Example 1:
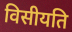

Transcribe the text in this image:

विसीयति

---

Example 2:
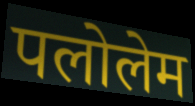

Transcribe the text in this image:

पलोलेम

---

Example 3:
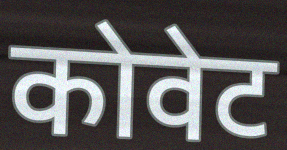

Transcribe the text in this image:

कोवेट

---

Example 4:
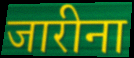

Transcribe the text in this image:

जारीना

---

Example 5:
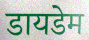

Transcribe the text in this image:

डायडेम